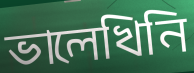
ভালেখিনি